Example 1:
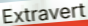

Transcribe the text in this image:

Extravert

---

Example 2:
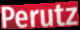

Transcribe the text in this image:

Perutz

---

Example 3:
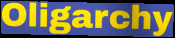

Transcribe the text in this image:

Oligarchy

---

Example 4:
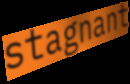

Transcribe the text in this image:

stagnant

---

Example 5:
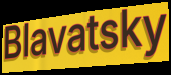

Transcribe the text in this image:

Blavatsky